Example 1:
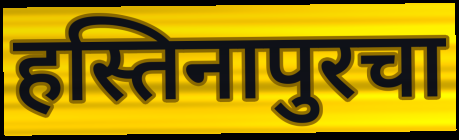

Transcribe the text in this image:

हस्तिनापुरचा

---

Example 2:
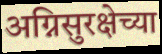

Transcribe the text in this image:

अग्निसुरक्षेच्या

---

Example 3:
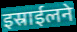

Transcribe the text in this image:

इस्राईलने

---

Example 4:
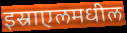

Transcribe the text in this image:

इस्राएलमधील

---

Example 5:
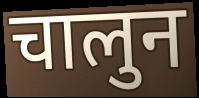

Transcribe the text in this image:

चालुन